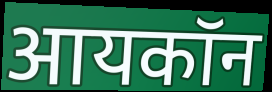
आयकॉन